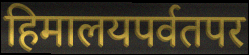
हिमालयपर्वतपर